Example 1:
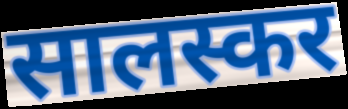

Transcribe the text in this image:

सालस्कर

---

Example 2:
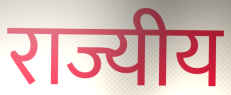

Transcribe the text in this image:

राज्यीय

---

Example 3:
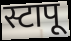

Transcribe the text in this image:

स्टापू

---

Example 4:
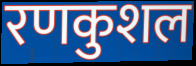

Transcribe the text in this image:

रणकुशल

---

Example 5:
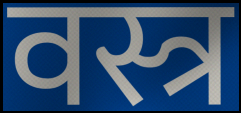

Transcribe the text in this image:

वस्त्र